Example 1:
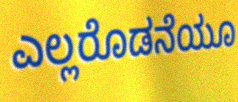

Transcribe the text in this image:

ಎಲ್ಲರೊಡನೆಯೂ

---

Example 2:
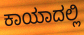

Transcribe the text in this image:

ಕಾಯಾದಲ್ಲಿ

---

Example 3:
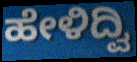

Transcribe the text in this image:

ಹೇಳಿದ್ವಿ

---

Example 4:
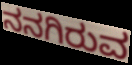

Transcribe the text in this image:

ನನಗಿರುವ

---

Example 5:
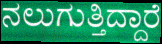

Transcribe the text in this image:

ನಲುಗುತ್ತಿದ್ದಾರೆ